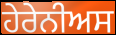
ਹੇਰੇਨੀਅਸ